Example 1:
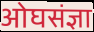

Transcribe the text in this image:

ओघसंज्ञा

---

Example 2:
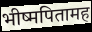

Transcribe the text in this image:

भीष्मपितामह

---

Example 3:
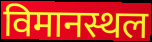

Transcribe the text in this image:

विमानस्थल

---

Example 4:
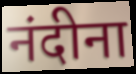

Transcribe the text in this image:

नंदीना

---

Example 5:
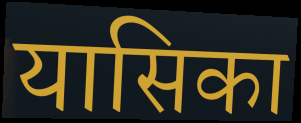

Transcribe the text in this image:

यासिका